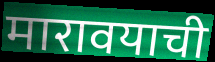
मारावयाची